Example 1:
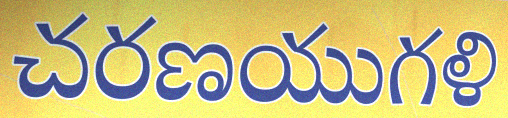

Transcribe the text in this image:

చరణయుగళి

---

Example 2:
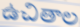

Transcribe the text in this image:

ఉచితాల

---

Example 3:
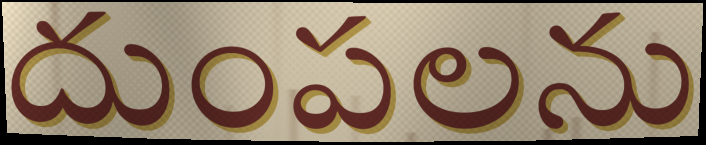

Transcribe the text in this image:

దుంపలను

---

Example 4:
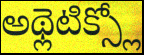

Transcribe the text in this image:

అథ్లెటిక్స్లో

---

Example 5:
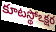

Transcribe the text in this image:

కూటస్థోఽక్షర